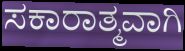
ಸಕಾರಾತ್ಮವಾಗಿ